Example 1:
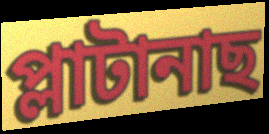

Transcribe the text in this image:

প্লাটানাছ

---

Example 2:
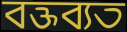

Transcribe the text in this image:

বক্তব্যত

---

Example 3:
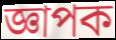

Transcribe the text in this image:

জ্ঞাপক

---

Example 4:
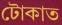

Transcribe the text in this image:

টোকাত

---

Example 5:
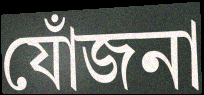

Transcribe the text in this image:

যোঁজনা